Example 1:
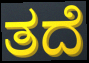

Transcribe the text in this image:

ತದೆ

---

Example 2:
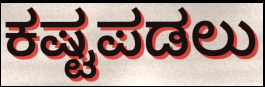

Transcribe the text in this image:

ಕಷ್ಟಪಡಲು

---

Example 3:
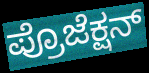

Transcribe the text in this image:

ಪ್ರೊಜೆಕ್ಷನ್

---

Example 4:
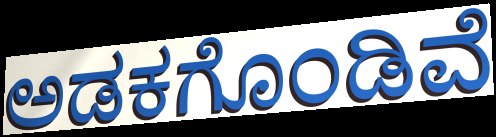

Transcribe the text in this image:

ಅಡಕಗೊಂಡಿವೆ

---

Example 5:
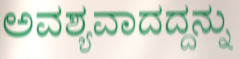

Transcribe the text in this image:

ಅವಶ್ಯವಾದದ್ದನ್ನು